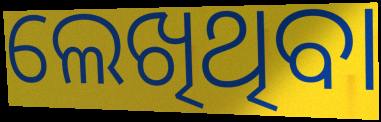
ଲେଖିଥିବା